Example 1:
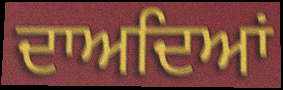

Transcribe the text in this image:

ਦਾਅਦਿਆਂ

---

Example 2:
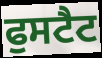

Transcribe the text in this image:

ਫੁਸਟੈਟ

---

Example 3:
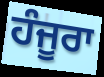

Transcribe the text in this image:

ਹੰਜੂਰਾ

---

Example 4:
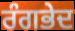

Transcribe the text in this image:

ਰੰਗਭੇਦ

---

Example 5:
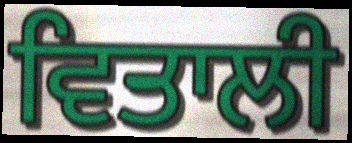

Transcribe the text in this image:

ਵਿਤਾਲੀ